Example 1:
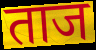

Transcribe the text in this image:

ताज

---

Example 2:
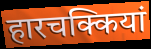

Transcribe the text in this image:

हारचक्कियां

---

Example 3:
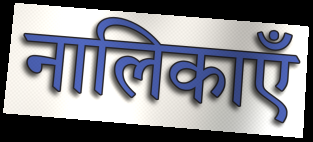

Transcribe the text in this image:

नालिकाएँ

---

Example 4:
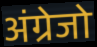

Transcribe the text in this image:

अंग्रेजो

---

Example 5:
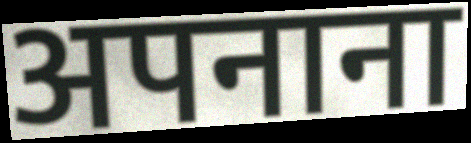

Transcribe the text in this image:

अपनाना